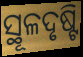
ସ୍ଥୂଳଦୃଷ୍ଟି